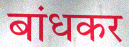
बांधकर